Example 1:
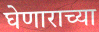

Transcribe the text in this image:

घेणाराच्या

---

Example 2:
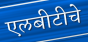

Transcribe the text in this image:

एलबीटीचे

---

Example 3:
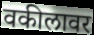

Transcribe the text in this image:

वकीलावर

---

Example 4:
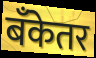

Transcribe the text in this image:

बँकेतर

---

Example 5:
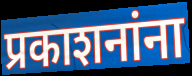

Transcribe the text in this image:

प्रकाशनांना